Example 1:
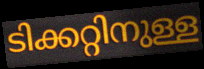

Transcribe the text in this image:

ടിക്കറ്റിനുള്ള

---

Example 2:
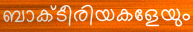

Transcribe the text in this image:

ബാക്ടീരിയകളേയും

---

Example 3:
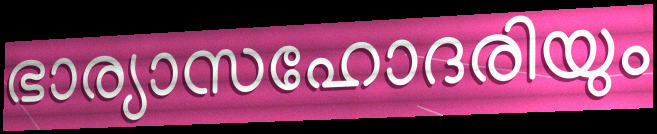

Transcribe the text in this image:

ഭാര്യാസഹോദരിയും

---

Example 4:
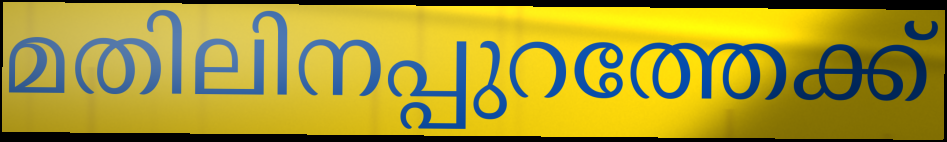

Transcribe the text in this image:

മതിലിനപ്പുറത്തേക്ക്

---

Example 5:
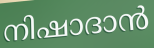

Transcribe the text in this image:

നിഷാദാൻ